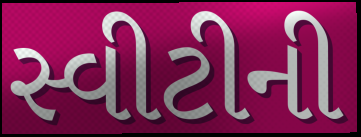
સ્વીટીની